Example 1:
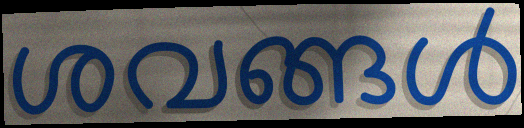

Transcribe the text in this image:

ശവങ്ങൾ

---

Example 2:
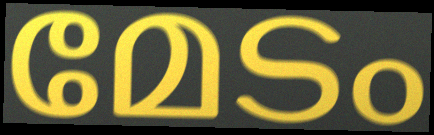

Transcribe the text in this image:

മേടം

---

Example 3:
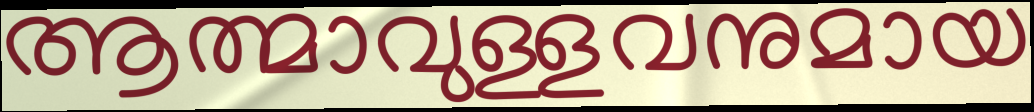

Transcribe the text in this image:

ആത്മാവുള്ളവനുമായ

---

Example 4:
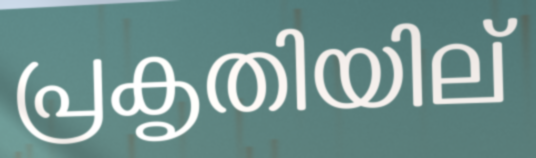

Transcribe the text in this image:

പ്രകൃതിയില്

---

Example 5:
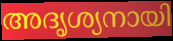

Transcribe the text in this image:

അദൃശ്യനായി